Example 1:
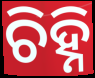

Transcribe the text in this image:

ଚିହ୍ନି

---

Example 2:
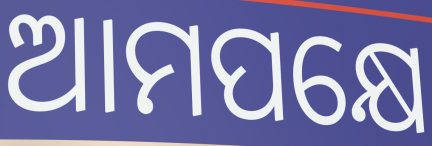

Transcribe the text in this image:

ଆମପକ୍ଷେ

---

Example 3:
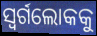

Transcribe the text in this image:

ସ୍ବର୍ଗଲୋକକୁ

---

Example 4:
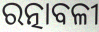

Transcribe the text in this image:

ରତ୍ନାବଳୀ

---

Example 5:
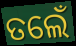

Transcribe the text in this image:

ତଲେଁ